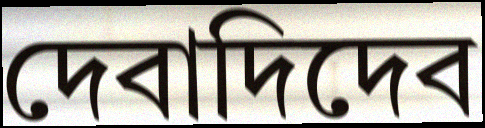
দেবাদিদেব